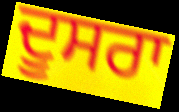
ਦੂਸਰਾ